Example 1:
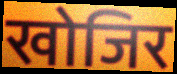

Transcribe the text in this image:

खोजिर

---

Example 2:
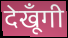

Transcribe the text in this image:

देखूँगी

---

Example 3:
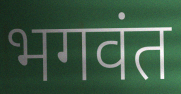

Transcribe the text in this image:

भगवंत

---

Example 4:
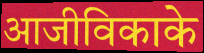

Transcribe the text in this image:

आजीविकाके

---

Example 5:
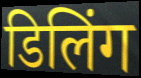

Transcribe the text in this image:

डिलिंग